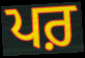
ਪਰ਼